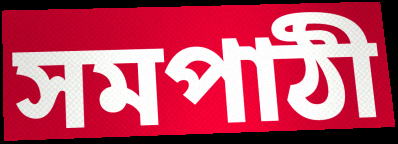
সমপাঠী